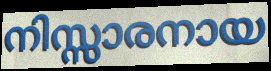
നിസ്സാരനായ